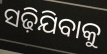
ସଢ଼ିଯିବାକୁ